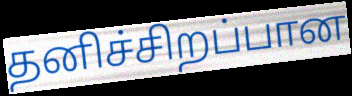
தனிச்சிறப்பான